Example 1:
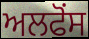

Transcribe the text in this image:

ਅਲਫੋਂਸ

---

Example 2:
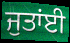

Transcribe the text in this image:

ਜੁਤਾਂਈ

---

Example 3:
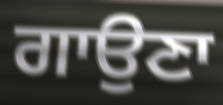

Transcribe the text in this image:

ਗਾਉਣਾ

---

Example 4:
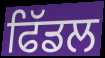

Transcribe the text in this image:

ਫਿੱਡਲ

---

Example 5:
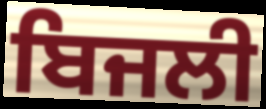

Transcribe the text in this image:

ਬਿਜਲੀ